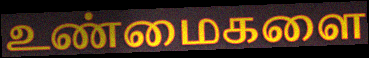
உண்மைகளை